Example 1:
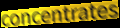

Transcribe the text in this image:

concentrates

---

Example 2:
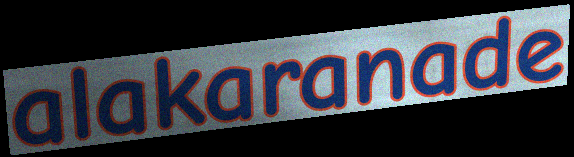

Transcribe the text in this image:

alakaranade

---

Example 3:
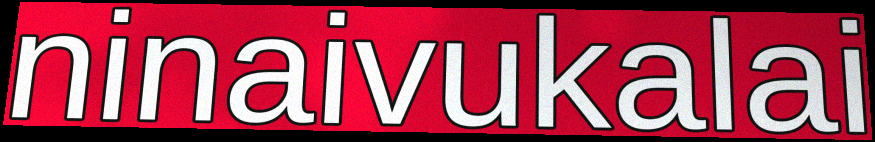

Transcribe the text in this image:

ninaivukalai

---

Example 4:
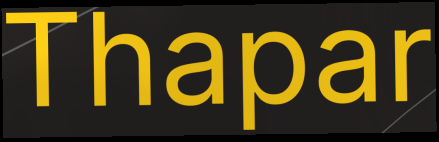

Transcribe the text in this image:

Thapar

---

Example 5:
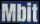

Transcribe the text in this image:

Mbit